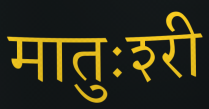
मातुःश्री